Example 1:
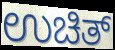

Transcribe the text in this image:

ಉಚಿತ್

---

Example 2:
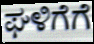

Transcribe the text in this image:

ಘಳಿಗೆಗೆ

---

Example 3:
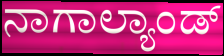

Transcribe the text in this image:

ನಾಗಾಲ್ಯಾಂಡ್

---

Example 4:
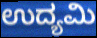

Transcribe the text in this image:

ಉದ್ಯಮಿ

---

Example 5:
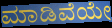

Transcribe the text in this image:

ಮಾಡಿವೆಯೇ